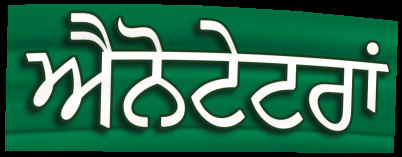
ਐਨੋਟੇਟਰਾਂ